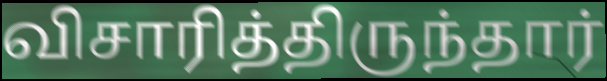
விசாரித்திருந்தார்